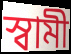
স্বামী